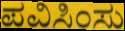
ಪವಿಸಿಂಸು